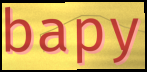
bapy